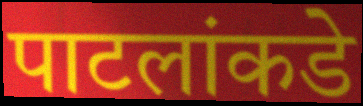
पाटलांकडे